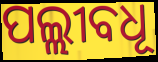
ପଲ୍ଲୀବଧୂ